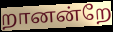
றானன்றே